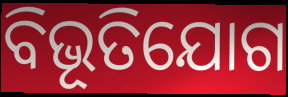
ବିଭୂତିଯୋଗ